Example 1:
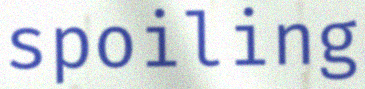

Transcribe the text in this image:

spoiling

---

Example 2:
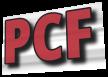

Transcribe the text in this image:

PCF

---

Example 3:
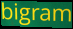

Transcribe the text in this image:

bigram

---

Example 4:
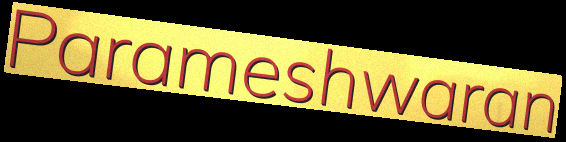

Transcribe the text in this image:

Parameshwaran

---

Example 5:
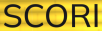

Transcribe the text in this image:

SCORI